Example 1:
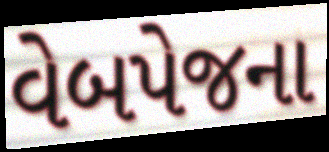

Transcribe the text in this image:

વેબપેજના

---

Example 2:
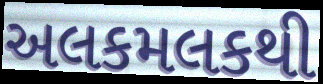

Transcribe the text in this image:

અલકમલકથી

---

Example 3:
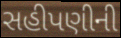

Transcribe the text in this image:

સહીપણીની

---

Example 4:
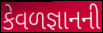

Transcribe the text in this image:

કેવળજ્ઞાનની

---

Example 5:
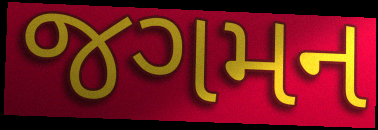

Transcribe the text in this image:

જગમન